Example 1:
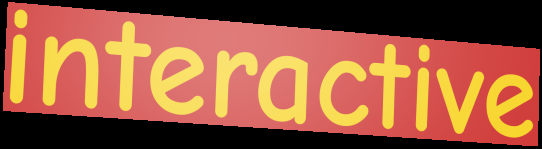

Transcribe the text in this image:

interactive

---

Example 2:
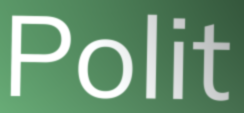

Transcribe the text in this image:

Polit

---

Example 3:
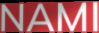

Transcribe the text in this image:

NAMI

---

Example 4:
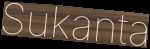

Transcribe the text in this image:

Sukanta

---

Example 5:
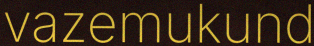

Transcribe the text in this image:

vazemukund